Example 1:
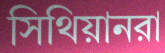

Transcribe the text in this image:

সিথিয়ানরা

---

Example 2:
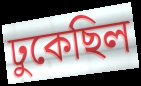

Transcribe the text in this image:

ঢুকেছিল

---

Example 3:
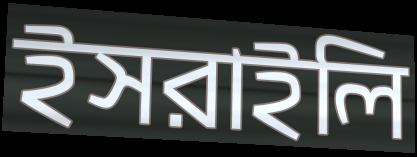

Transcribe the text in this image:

ইসরাইলি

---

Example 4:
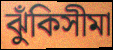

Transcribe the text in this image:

ঝুঁকিসীমা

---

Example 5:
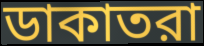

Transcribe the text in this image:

ডাকাতরা